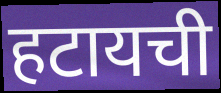
हटायची